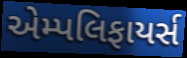
એમ્પલિફાયર્સ